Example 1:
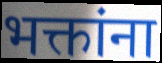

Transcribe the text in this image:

भक्तांना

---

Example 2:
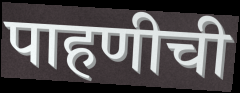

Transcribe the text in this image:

पाहणीची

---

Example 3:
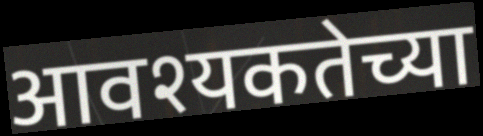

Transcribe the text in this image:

आवश्यकतेच्या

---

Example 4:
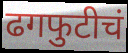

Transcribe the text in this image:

ढगफुटीचं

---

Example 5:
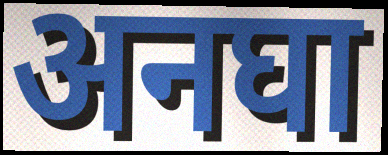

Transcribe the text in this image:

अनघा